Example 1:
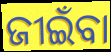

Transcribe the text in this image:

ଜୀଇଁବା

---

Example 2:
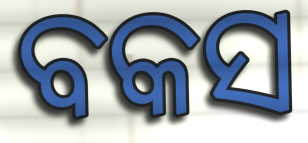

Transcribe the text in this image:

ବକସ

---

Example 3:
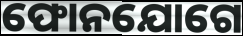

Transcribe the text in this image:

ଫୋନଯୋଗେ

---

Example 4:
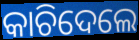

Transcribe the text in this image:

କାଚିଦେଲେ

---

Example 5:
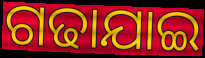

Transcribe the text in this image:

ଗଢାଯାଇ